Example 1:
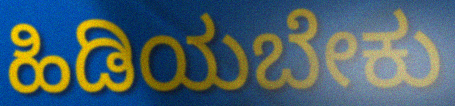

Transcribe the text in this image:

ಹಿಡಿಯಬೇಕು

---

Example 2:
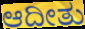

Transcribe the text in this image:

ಆದೀತು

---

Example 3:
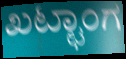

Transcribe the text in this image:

ಖಟ್ಟಾಂಗ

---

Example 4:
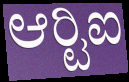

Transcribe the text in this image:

ಆರ್‍ಟಿಐ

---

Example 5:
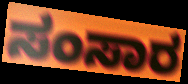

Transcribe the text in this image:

ಸಂಸಾರ